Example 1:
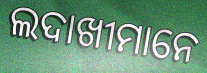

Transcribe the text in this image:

ଲଦାଖୀମାନେ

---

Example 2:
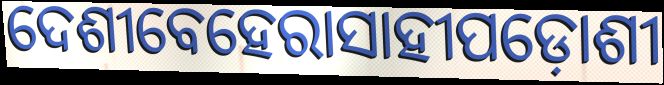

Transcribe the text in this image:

ଦେଶୀବେହେରାସାହୀପଡ଼ୋଶୀ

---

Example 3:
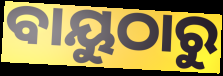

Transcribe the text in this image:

ବାୟୁଠାରୁ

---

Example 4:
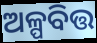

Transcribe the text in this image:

ଅଳ୍ପବିତ୍ତ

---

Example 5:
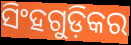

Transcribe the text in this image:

ସିଂହଗୁଡ଼ିକର